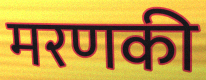
मरणकी